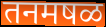
तनमषळ